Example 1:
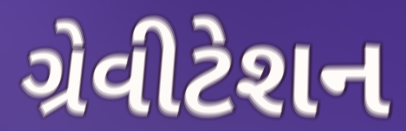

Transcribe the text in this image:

ગ્રેવીટેશન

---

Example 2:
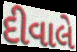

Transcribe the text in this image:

દીવાલે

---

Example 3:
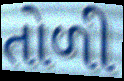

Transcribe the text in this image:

તોળી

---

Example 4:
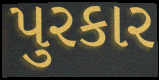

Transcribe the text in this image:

પુરકાર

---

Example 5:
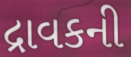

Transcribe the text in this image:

દ્રાવકની